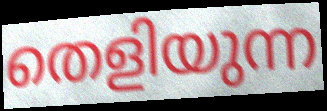
തെളിയുന്ന